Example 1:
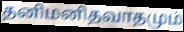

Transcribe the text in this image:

தனிமனிதவாதமும்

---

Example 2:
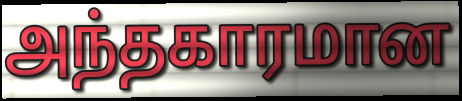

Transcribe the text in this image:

அந்தகாரமான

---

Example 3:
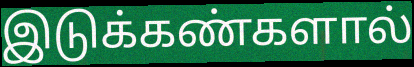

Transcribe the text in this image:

இடுக்கண்களால்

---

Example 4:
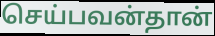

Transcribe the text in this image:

செய்பவன்தான்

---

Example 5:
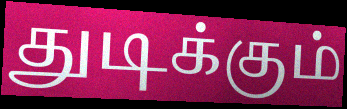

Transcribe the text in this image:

துடிக்கும்